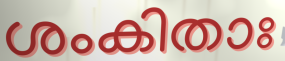
ശംകിതാഃ